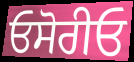
ਓਸੋਰੀਓ